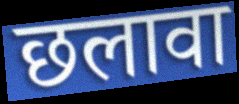
छलावा